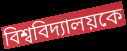
বিশ্ববিদ্যালয়কে